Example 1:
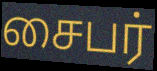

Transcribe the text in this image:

சைபர்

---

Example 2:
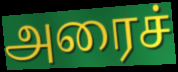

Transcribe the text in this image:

அரைச்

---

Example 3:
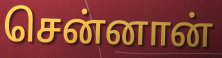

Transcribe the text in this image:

சென்னான்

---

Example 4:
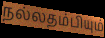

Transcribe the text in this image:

நல்லதம்பியும்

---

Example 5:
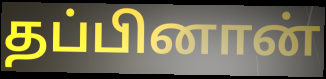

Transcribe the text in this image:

தப்பினான்